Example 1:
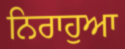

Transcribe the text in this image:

ਨਿਰਾਹੁਆ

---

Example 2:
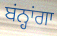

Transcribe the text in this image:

ਬਂਨ੍ਹਾਂਗਾ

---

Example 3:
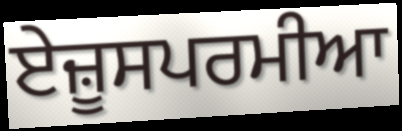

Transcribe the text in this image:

ਏਜ਼ੂਸਪਰਮੀਆ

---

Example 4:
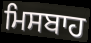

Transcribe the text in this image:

ਮਿਸਬਾਹ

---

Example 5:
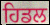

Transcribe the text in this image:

ਹਿਡਲ